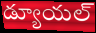
డ్యూయల్